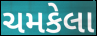
ચમકેલા